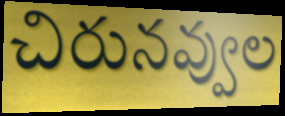
చిరునవ్వుల